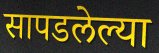
सापडलेल्‍या